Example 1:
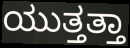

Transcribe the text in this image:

ಯುತ್ತತ್ತಾ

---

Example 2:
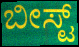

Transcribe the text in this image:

ಬೀಸ್ಟ್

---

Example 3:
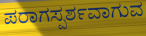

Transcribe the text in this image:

ಪರಾಗಸ್ಪರ್ಶವಾಗುವ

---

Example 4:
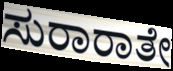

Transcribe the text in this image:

ಸುರಾರಾತೇ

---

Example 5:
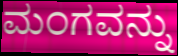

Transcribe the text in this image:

ಮಂಗವನ್ನು